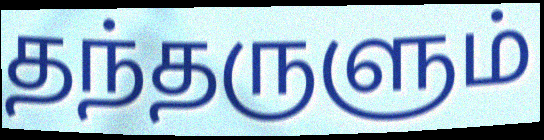
தந்தருளும்